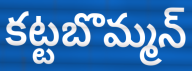
కట్టబొమ్మన్